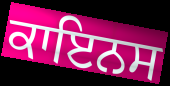
ਕਾਇਨਸ